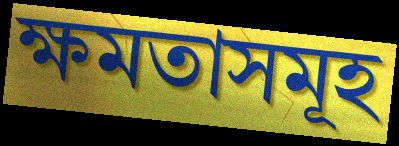
ক্ষমতাসমূহ